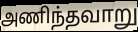
அணிந்தவாறு